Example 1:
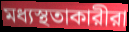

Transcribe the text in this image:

মধ্যস্থতাকারীরা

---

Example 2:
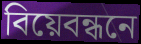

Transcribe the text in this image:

বিয়েবন্ধনে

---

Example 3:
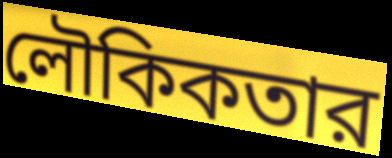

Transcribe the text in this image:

লৌকিকতার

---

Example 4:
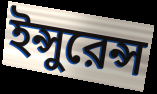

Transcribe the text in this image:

ইন্সুরেন্স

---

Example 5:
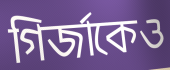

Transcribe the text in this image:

গির্জাকেও